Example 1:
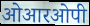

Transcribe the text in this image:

ओआरओपी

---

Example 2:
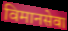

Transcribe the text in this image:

विमानसेवा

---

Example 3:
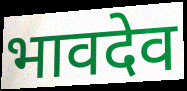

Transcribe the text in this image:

भावदेव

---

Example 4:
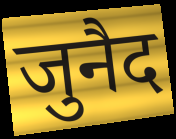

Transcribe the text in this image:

जुनैद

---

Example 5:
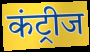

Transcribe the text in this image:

कंट्रीज